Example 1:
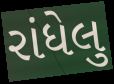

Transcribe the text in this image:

રાંધેલુ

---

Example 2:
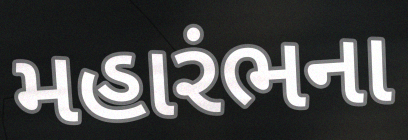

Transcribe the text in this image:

મહારંભના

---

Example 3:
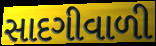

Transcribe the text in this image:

સાદગીવાળી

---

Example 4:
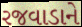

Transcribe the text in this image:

રજવાડાને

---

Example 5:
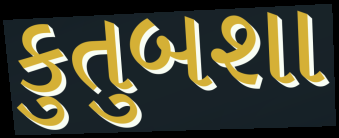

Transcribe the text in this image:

કુતુબશા